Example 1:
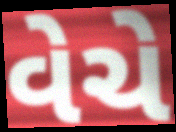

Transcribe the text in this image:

વેચે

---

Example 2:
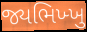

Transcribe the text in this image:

જ્યભિખ્ખુ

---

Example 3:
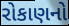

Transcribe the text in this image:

રોકાણનો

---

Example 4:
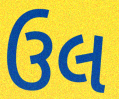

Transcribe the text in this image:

ઉલ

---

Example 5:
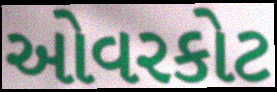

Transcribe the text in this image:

ઓવરકોટ